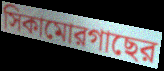
সিকামোরগাছের